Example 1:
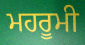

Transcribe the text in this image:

ਮਹਰੂਮੀ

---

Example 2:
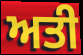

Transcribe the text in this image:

ਅਤੀ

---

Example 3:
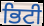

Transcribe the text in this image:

ਭਿਟੀ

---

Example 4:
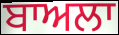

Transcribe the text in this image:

ਬਾਅਲਾ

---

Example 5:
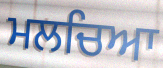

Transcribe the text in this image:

ਮਲਚਿਆ